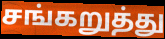
சங்கறுத்து